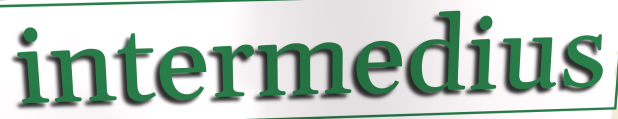
intermedius